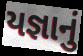
યજ્ઞાનું